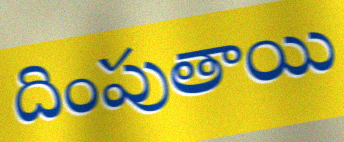
దింపుతాయి